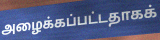
அழைக்கப்பட்டதாகக்